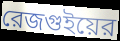
রেজগুইয়ের